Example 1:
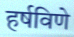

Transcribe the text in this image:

हर्षविणे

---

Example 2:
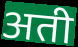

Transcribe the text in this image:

अती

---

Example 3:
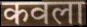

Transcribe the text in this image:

कवला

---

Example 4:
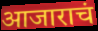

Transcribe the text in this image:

आजाराचं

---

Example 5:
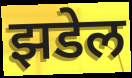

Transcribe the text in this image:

झडेल